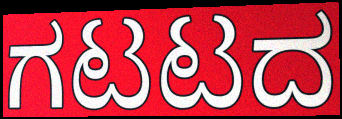
ಗಟಟದ